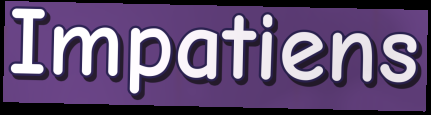
Impatiens